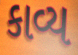
કાવ્ય